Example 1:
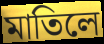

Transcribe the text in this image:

মাতিলে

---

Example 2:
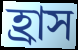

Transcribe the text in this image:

হ্ৰাস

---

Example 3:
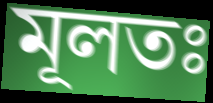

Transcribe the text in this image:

মূলতঃ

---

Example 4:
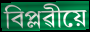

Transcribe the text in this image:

বিপ্লৱীয়ে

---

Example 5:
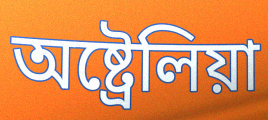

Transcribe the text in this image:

অষ্ট্ৰেলিয়া